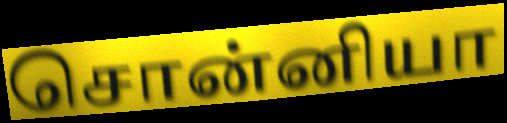
சொன்னியா